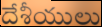
దేశీయులు